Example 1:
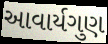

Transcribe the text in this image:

આવાર્યગુણ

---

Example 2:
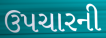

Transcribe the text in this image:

ઉપચારની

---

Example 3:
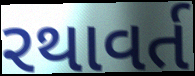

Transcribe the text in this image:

રથાવર્ત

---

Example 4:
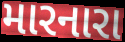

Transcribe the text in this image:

મારનારા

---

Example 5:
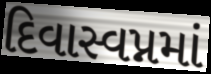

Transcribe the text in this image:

દિવાસ્વપ્નમાં